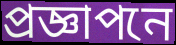
প্রজ্ঞাপনে